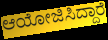
ಆಯೋಜಿಸಿದ್ದಾರೆ